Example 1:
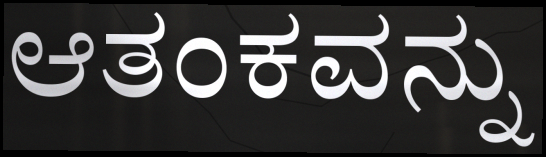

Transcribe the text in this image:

ಆತಂಕವನ್ನು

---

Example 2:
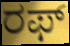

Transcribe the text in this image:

ರಫ್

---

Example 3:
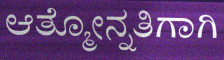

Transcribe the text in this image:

ಆತ್ಮೋನ್ನತಿಗಾಗಿ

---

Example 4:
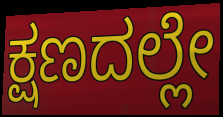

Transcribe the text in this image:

ಕ್ಷಣದಲ್ಲೇ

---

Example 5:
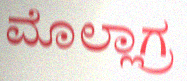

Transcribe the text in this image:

ಮೊಲ್ಲಾಗ್ರ